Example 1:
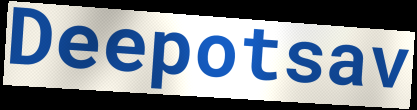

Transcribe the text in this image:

Deepotsav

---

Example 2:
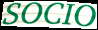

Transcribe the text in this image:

SOCIO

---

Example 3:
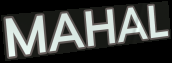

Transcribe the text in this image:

MAHAL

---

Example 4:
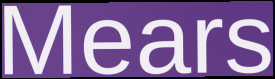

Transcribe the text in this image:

Mears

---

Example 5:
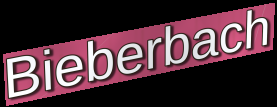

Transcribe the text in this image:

Bieberbach